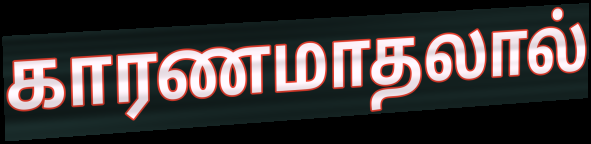
காரணமாதலால்